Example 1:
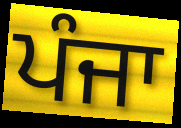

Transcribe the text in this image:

ਪੰਜਾ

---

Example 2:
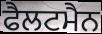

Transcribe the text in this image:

ਫੈਲਟਮੈਨ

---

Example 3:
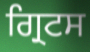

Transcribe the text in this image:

ਗ੍ਰਿਟਸ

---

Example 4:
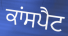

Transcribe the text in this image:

ਕਾਂਸਪੈਟ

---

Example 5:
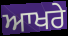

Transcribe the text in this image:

ਆਖਰੇ